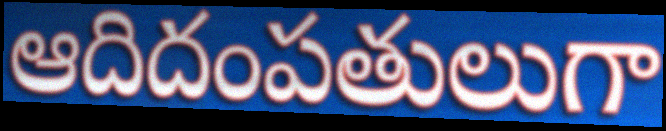
ఆదిదంపతులుగా